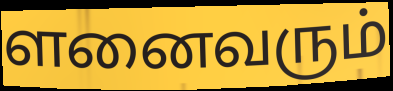
ளனைவரும்